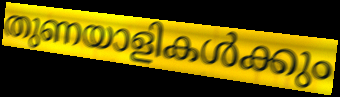
തുണയാളികൾക്കും